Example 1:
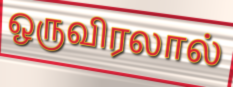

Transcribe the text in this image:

ஒருவிரலால்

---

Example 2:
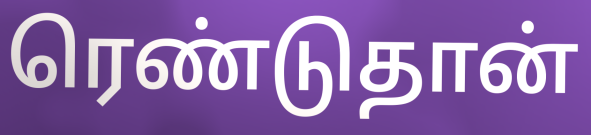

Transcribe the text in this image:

ரெண்டுதான்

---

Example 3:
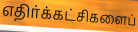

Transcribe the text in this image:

எதிர்க்கட்சிகளைப்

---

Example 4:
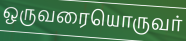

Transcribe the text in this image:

ஒருவரையொருவர்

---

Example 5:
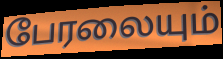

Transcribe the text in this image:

பேரலையும்